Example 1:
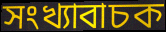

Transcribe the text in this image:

সংখ্যাবাচক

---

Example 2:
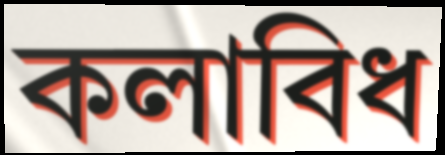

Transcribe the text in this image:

কলাবিধ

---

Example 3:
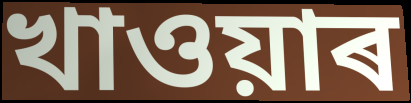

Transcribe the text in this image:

খাওয়াৰ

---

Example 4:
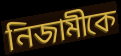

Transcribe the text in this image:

নিজামীকে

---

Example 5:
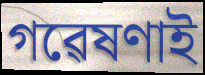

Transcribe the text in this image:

গৱেষণাই